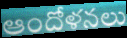
ఆందోళనలు